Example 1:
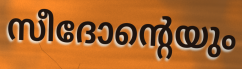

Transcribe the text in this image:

സീദോന്റെയും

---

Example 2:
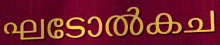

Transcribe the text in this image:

ഘടോൽകച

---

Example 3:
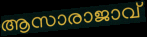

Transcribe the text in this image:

ആസാരാജാവ്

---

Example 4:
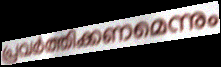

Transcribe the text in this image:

പ്രവർത്തിക്കണമെന്നും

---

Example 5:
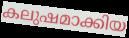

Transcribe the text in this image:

കലുഷമാക്കിയ